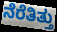
ನೆರೆತಿತ್ತು